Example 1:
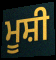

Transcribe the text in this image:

ਮੂਸ਼ੀ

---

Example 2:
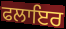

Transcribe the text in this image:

ਫਲਾਇਰ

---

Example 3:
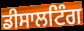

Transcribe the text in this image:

ਡੀਸਾਲਟਿੰਗ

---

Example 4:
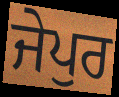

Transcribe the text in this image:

ਜੇਪੁਰ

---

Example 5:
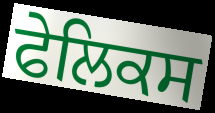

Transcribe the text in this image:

ਫੇਲਿਕਸ